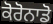
ਕੋਰੋਨਾਡੋ